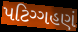
પટિગ્ગહણં